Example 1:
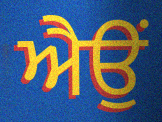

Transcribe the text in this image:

ਐਉਂ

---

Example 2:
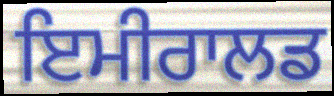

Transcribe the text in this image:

ਇਮੀਰਾਲਡ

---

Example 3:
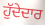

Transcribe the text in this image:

ਹੁੱਦੇਦਾਰ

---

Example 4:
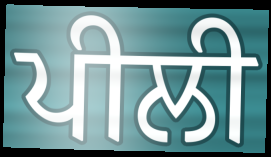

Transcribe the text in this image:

ਪੀਲੀ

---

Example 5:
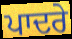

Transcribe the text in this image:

ਪਾਦਰੇ